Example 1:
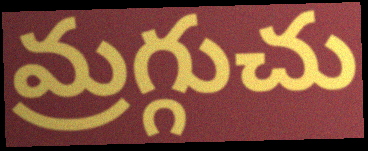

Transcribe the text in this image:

మ్రగ్గుచు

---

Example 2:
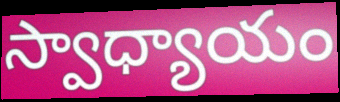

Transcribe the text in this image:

స్వాధ్యాయం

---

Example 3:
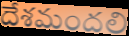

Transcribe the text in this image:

దేశమందలి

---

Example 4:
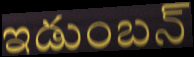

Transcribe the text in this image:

ఇడుంబన్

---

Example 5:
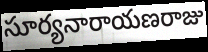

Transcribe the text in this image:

సూర్యనారాయణరాజు